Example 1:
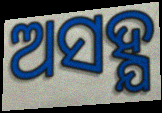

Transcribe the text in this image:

ଅସହ୍ଯ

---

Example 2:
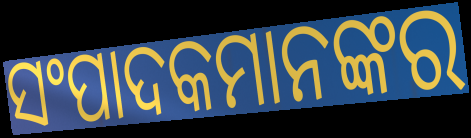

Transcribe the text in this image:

ସଂପାଦକମାନଙ୍କର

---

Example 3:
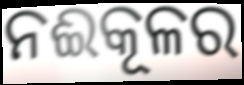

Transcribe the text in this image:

ନଈକୂଳର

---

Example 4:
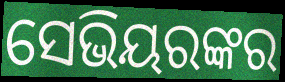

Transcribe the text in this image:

ସେଭିୟରଙ୍କର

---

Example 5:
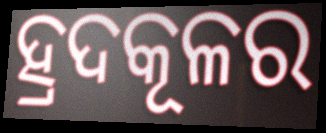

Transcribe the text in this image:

ହ୍ରଦକୂଳର